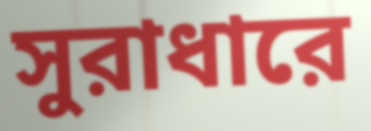
সুরাধারে